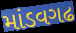
માંડવગઢ